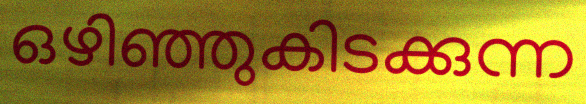
ഒഴിഞ്ഞുകിടക്കുന്ന